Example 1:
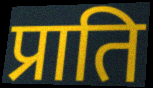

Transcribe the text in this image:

प्राति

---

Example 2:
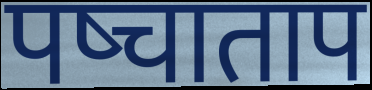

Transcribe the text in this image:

पष्चाताप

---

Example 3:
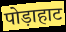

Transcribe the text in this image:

पोड़ाहाट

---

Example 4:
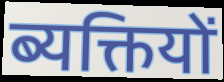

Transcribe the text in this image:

ब्यक्तियों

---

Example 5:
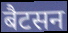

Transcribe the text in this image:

बैटसन